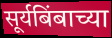
सूर्यबिंबाच्या